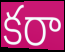
కరా